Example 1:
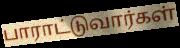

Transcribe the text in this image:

பாராட்டுவார்கள்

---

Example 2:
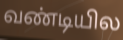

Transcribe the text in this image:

வண்டியில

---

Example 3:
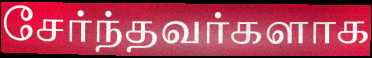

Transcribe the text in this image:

சேர்ந்தவர்களாக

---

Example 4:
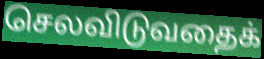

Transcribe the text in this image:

செலவிடுவதைக்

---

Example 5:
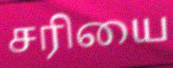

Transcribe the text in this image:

சரியை